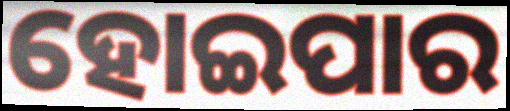
ହୋଇପାର